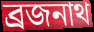
ব্রজনাথ